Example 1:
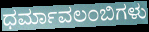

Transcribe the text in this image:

ಧರ್ಮಾವಲಂಬಿಗಳು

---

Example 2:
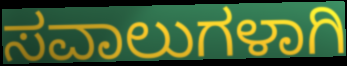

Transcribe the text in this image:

ಸವಾಲುಗಳಾಗಿ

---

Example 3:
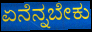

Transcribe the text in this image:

ಏನೆನ್ನಬೇಕು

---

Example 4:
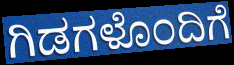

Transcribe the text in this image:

ಗಿಡಗಳೊಂದಿಗೆ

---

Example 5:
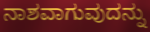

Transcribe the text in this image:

ನಾಶವಾಗುವುದನ್ನು